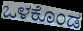
ಒಳಕೊಂಡ